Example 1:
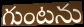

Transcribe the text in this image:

గుంటను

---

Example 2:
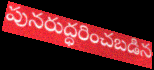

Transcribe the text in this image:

పునరుద్ధరించబడిన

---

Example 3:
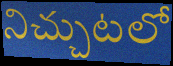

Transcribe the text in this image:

నిచ్చుటలో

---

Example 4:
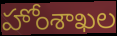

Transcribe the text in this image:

హోంశాఖల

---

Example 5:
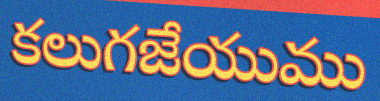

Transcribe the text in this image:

కలుగజేయుము